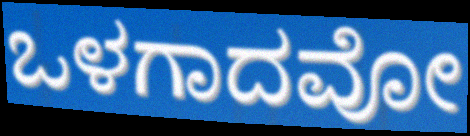
ಒಳಗಾದವೋ